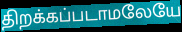
திறக்கப்படாமலேயே